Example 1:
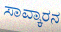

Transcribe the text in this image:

ಸಾವ್ಕಾರನ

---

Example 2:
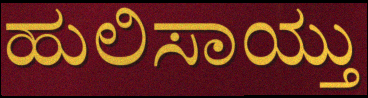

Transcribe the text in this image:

ಹುಲಿಸಾಯ್ತು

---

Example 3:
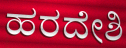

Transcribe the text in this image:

ಹರದೇಶಿ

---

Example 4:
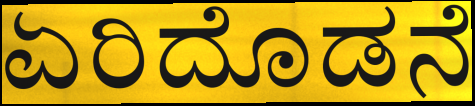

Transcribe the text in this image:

ಏರಿದೊಡನೆ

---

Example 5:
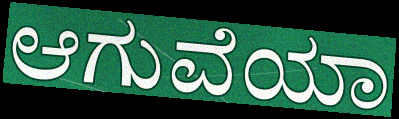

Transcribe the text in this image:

ಆಗುವೆಯಾ